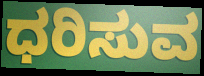
ಧರಿಸುವ